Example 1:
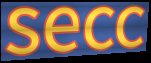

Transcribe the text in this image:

secc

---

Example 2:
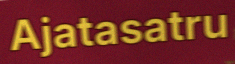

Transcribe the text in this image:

Ajatasatru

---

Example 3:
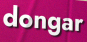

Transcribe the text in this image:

dongar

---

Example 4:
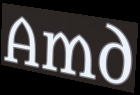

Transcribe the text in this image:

Amd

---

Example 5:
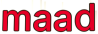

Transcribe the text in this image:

maad